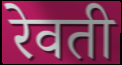
रेवती